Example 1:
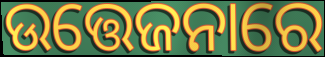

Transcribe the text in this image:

ଉତ୍ତେଜନାରେ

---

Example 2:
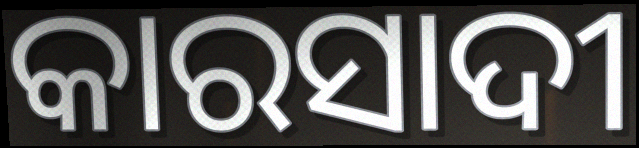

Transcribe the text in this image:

କାରସାଦୀ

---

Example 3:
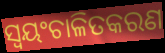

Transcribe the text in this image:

ସ୍ୱୟଂଚାଳିତକରଣ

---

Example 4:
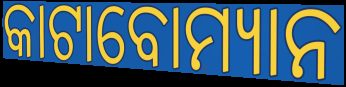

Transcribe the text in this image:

କାଟାବୋମ୍ୟାନ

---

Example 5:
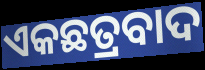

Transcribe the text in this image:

ଏକଛତ୍ରବାଦ